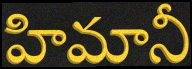
హిమానీ